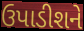
ઉપાડીશને